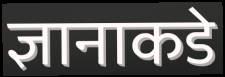
ज्ञानाकडे